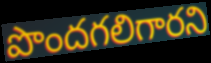
పొందగలిగారని